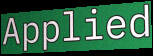
Applied